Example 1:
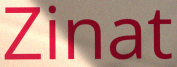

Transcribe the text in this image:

Zinat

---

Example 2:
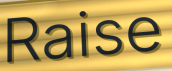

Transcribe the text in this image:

Raise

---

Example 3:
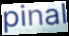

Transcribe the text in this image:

pinal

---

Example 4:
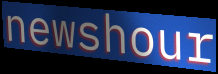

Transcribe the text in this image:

newshour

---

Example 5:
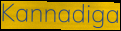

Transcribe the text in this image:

Kannadiga